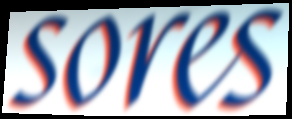
sores